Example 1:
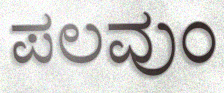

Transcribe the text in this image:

ಪಲವುಂ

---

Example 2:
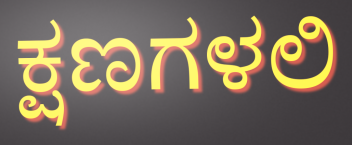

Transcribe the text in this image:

ಕ್ಷಣಗಳಲಿ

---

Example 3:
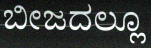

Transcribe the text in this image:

ಬೀಜದಲ್ಲೂ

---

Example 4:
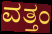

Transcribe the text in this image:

ವತ್ತಂ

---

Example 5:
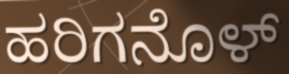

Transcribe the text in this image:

ಹರಿಗನೊಳ್